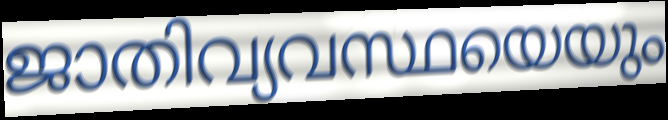
ജാതിവ്യവസ്ഥയെയും